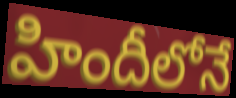
హిందీలోనే